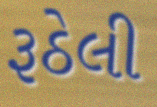
રૂઠેલી